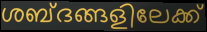
ശബ്ദങ്ങളിലേക്ക്